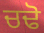
ਚਢੋ